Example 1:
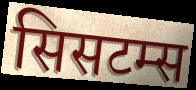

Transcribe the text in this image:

सिसटम्स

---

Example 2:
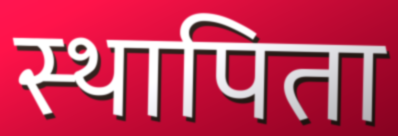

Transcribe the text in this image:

स्थापिता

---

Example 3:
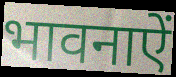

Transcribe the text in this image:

भावनाऐं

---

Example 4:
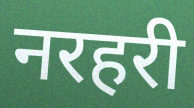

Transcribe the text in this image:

नरहरी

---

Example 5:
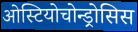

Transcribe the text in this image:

ओस्टियोचोन्ड्रोसिस